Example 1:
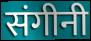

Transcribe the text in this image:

संगीनी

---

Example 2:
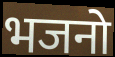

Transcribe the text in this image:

भजनो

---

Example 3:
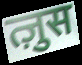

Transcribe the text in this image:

त्ज़ुस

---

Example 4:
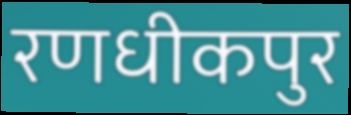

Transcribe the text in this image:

रणधीकपुर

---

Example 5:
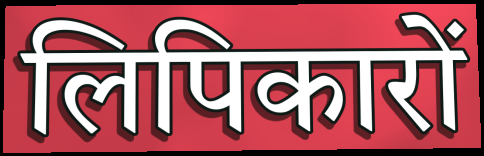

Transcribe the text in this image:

लिपिकारों